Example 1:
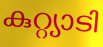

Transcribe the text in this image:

കുറ്റ്യാടി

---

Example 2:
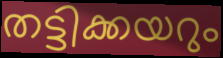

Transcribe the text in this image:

തട്ടിക്കയറും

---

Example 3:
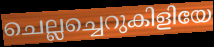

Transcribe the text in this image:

ചെല്ലച്ചെറുകിളിയേ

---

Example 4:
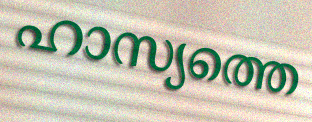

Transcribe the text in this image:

ഹാസ്യത്തെ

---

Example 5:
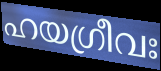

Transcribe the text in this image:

ഹയഗ്രീവഃ